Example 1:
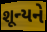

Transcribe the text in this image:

શૂન્યને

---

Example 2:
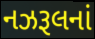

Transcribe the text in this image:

નઝરૂલનાં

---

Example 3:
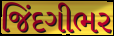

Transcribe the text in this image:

જિંદગીભર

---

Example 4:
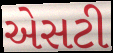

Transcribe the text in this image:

એસટી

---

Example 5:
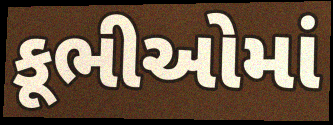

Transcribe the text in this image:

કૂભીઓમાં